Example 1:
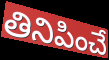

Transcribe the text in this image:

తినిపించే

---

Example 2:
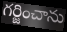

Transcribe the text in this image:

గర్జించాను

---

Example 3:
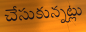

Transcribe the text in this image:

చేసుకున్నట్లు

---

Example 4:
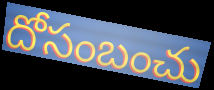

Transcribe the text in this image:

దోసంబంచు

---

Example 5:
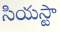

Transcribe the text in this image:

సియస్టా